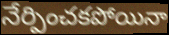
నేర్పించకపోయినా